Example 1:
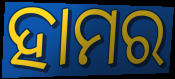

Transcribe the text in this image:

ହାମର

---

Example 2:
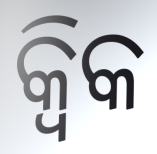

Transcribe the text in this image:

କ୍ୱିକ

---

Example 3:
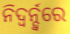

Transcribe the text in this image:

ନିଦ୍ଵର୍ନ୍ଦ୍ୱରେ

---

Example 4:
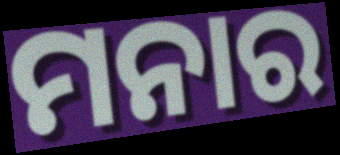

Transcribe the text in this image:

ମନାର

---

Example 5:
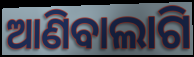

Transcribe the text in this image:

ଆଣିବାଲାଗି